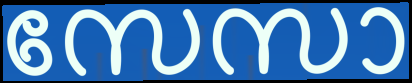
സേസാ